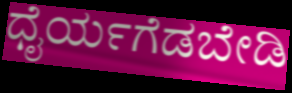
ಧೈರ್ಯಗೆಡಬೇಡಿ